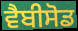
ਵੈਬੀਸੋਡ